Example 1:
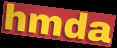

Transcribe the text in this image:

hmda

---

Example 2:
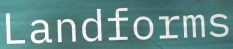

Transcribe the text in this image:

Landforms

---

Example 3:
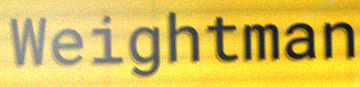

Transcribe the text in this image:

Weightman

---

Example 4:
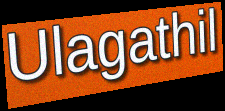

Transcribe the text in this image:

Ulagathil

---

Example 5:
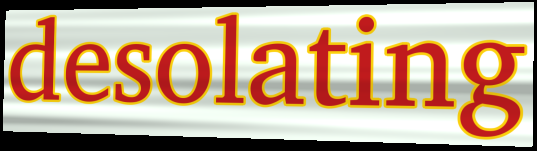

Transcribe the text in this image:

desolating